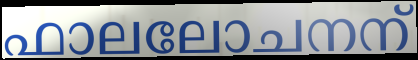
ഫാലലോചനന്